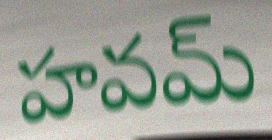
హవమ్